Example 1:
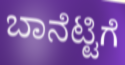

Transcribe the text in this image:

ಬಾನೆಟ್ಟಿಗೆ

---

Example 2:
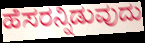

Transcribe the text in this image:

ಹೆಸರನ್ನಿಡುವುದು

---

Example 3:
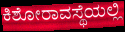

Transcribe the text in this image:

ಕಿಶೋರಾವಸ್ಥೆಯಲ್ಲಿ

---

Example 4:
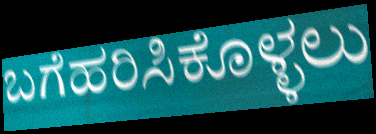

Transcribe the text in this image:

ಬಗೆಹರಿಸಿಕೊಳ್ಳಲು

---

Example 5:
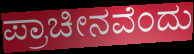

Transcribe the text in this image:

ಪ್ರಾಚೀನವೆಂದು